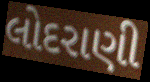
લોદરાણી